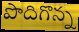
పొదిగొన్న